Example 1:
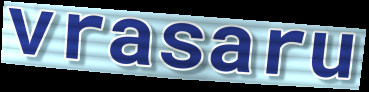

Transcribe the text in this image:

vrasaru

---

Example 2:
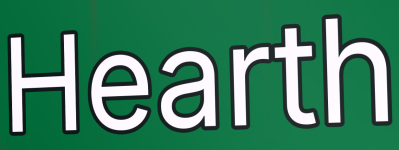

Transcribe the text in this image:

Hearth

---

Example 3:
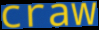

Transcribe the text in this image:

craw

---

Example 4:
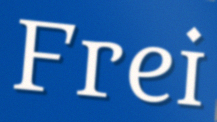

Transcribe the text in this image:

Frei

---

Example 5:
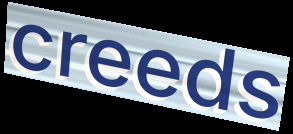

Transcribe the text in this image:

creeds